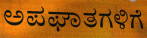
ಅಪಘಾತಗಳಿಗೆ